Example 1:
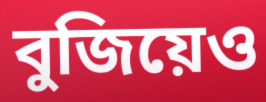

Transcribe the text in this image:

বুজিয়েও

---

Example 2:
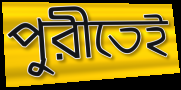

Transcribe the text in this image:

পুরীতেই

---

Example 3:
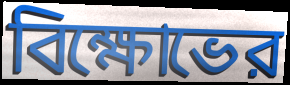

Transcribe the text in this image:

বিক্ষোভের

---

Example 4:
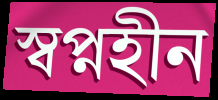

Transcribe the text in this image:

স্বপ্নহীন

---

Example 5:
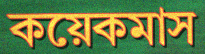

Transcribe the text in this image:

কয়েকমাস